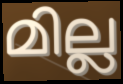
മില്ല